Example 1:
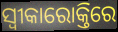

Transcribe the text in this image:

ସ୍ଵୀକାରୋକ୍ତିରେ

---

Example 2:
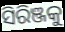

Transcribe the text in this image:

ସିରିଞ୍ଜକୁ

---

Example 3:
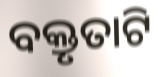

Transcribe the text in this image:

ବକ୍ତୃତାଟି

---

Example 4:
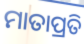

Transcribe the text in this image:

ମାତାପ୍ରତି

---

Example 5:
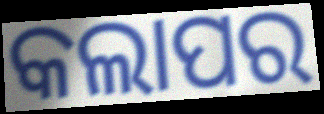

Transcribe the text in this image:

କଲାପର